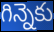
గిన్నెకు